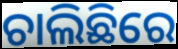
ଚାଲିଛିରେ